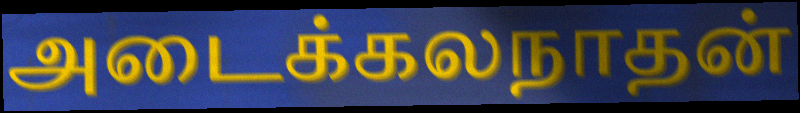
அடைக்கலநாதன்